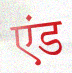
एंड